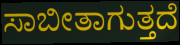
ಸಾಬೀತಾಗುತ್ತದೆ